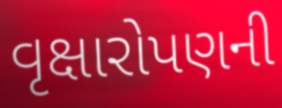
વૃક્ષારોપણની